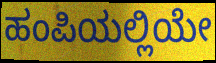
ಹಂಪಿಯಲ್ಲಿಯೇ